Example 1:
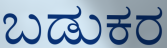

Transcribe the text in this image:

ಬಡುಕರ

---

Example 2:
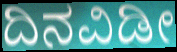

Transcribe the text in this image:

ದಿನವಿಡೀ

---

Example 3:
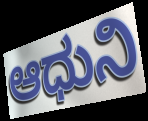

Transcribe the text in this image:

ಆಧುನಿ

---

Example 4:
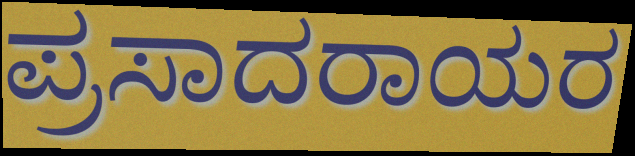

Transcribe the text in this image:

ಪ್ರಸಾದರಾಯರ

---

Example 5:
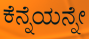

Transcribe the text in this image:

ಕೆನ್ನೆಯನ್ನೇ